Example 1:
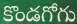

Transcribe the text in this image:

కొండగోగు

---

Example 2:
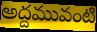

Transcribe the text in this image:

అద్దమువంటి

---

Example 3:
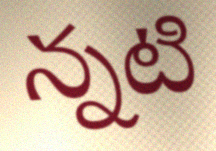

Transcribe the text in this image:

న్నటి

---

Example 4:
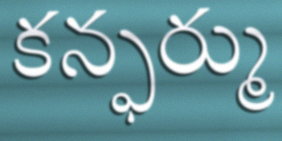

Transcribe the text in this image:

కన్ఫర్ము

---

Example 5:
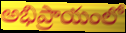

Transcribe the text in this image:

అభిప్రాయంలో